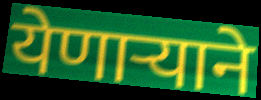
येणाऱ्याने